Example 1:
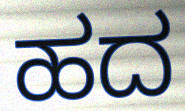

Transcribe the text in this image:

ಹದ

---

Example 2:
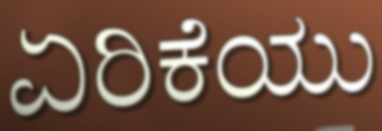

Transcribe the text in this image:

ಏರಿಕೆಯು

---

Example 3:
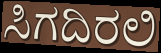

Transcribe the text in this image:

ಸಿಗದಿರಲಿ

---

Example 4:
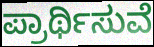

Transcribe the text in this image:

ಪ್ರಾರ್ಥಿಸುವೆ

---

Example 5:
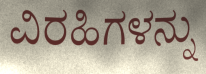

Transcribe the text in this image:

ವಿರಹಿಗಳನ್ನು